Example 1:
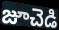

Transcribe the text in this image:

జూచెడి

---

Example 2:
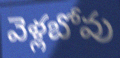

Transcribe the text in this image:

వెళ్లబోవు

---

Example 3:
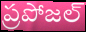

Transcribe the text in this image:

ప్రపోజల్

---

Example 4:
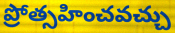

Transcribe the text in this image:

ప్రోత్సహించవచ్చు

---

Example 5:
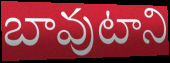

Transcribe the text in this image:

బావుటాని